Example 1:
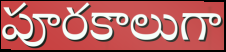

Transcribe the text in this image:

పూరకాలుగా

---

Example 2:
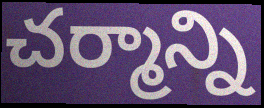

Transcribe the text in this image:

చర్మాన్ని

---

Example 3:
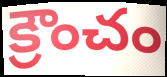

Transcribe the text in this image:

క్రౌంచం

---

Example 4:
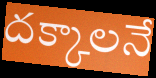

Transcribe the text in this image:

దక్కాలనే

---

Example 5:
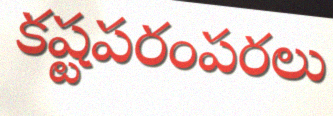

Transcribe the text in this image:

కష్టపరంపరలు